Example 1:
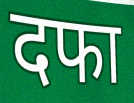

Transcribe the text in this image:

दफा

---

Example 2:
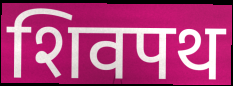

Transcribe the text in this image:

शिवपथ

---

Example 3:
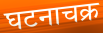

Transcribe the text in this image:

घटनाचक्र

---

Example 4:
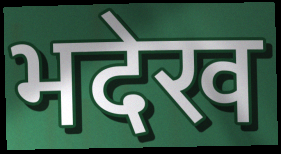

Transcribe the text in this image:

भदेख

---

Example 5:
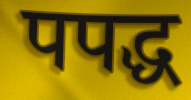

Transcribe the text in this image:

पपद्ध